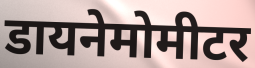
डायनेमोमीटर